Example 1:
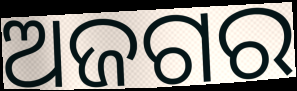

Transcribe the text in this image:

ଅଜଗର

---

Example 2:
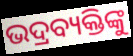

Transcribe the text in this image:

ଭଦ୍ରବ୍ୟକ୍ତିଙ୍କୁ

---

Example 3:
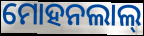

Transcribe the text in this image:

ମୋହନଲାଲ୍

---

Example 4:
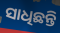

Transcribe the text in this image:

ସାଧିଛନ୍ତି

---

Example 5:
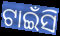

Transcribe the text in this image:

ଟାଇଁସି